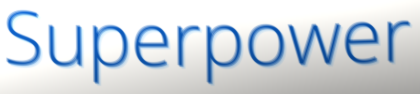
Superpower